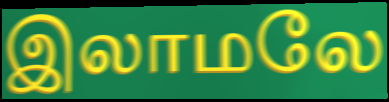
இலாமலே